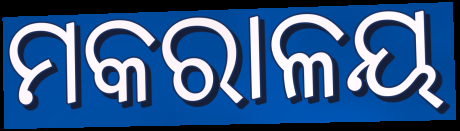
ମକରାଳୟ